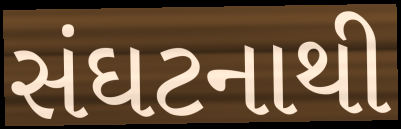
સંઘટનાથી